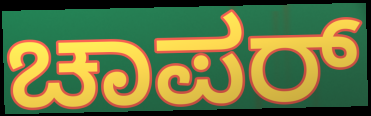
ಚಾಪರ್